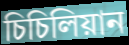
চিচিলিয়ান